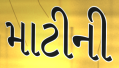
માટીની